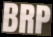
BRP